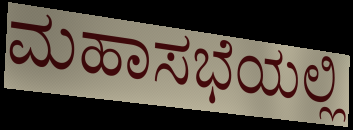
ಮಹಾಸಭೆಯಲ್ಲಿ